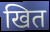
खित